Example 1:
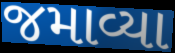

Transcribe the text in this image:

જમાવ્યા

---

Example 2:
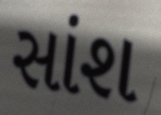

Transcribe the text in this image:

સાંશ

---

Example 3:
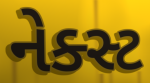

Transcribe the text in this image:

નેક્સ્ટ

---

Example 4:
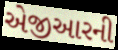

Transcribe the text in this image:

એજીઆરની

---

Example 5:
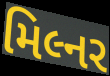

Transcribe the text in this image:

મિલ્નર